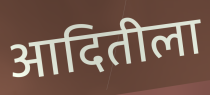
आदितीला